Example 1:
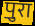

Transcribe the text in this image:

पु॒रा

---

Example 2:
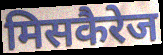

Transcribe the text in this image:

मिसकैरेज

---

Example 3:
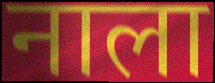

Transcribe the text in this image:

नाला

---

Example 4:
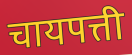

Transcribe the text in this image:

चायपत्ती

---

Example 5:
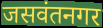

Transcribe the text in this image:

जसवंतनगर